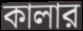
কালার